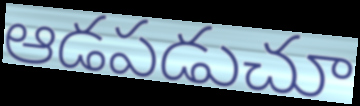
ఆడపడుచూ